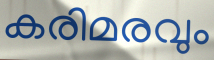
കരിമരവും